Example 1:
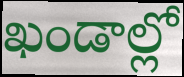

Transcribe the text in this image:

ఖండాల్లో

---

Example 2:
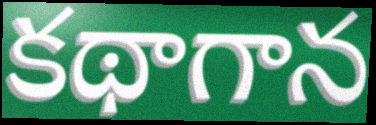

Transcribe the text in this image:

కథాగాన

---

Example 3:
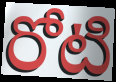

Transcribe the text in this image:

రోటి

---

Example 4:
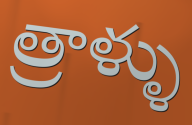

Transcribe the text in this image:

త్రాళ్ళు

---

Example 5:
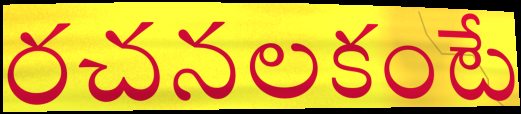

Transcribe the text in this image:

రచనలకంటే